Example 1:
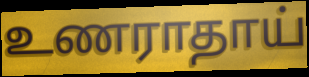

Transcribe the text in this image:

உணராதாய்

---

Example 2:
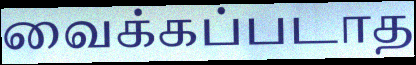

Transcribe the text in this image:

வைக்கப்படாத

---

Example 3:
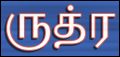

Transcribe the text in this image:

ருத்ர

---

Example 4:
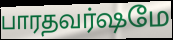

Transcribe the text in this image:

பாரதவர்ஷமே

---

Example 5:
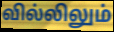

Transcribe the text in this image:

வில்லிலும்